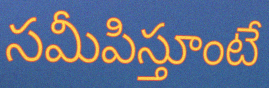
సమీపిస్తూంటే